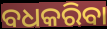
ବଧକରିବା